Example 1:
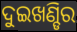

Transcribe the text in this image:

ଦୁଇଖଣ୍ଡିର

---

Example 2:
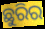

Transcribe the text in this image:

ଛୁରିର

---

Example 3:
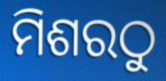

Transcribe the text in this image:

ମିଶରଠୁ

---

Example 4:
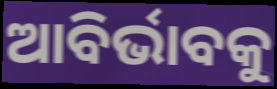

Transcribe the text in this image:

ଆବିର୍ଭାବକୁ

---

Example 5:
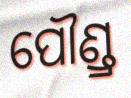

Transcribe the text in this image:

ପୌଣ୍ଡ୍ର